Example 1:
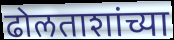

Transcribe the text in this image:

ढोलताशांच्या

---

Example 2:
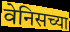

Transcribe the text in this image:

वेनिसच्या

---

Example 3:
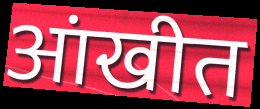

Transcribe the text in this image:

आंखीत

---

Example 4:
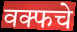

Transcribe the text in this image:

वक्फचे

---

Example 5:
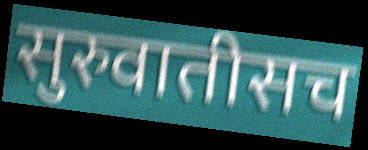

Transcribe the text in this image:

सुरुवातीसच